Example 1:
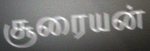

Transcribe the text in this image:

சூரையன்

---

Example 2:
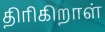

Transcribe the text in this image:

திரிகிறாள்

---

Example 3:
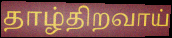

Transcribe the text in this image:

தாழ்திறவாய்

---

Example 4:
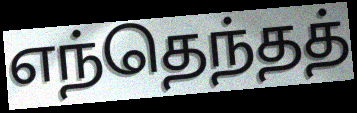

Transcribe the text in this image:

எந்தெந்தத்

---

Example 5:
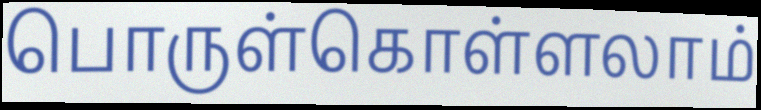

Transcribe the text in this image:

பொருள்கொள்ளலாம்